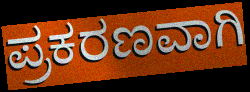
ಪ್ರಕರಣವಾಗಿ